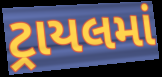
ટ્રાયલમાં